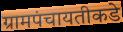
ग्रामपंचायतीकडे